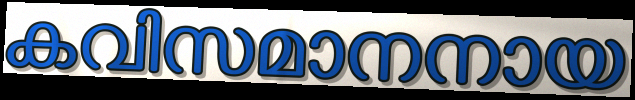
കവിസമാനനായ